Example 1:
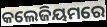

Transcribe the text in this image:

କଲେଜିୟମରେ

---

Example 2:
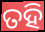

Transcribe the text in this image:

ତହି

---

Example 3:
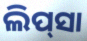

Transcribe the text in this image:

ଲିପ୍‌ସା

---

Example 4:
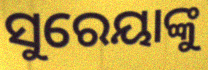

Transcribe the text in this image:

ସୁରେୟାଙ୍କୁ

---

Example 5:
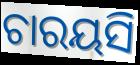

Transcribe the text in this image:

ଚାରୟସି